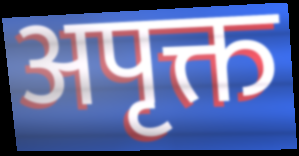
अपृक्त